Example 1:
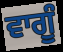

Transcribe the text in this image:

ਵਾਗੂੰ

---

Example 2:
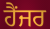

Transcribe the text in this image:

ਹੈਂਜਰ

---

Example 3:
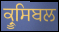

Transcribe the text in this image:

ਕ੍ਰੂਸਿਬਲ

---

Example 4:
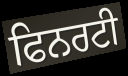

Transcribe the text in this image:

ਫਿਨਰਟੀ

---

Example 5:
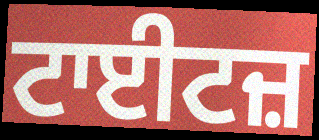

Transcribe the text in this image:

ਟਾਈਟਜ਼